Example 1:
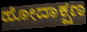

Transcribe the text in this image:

ಹೋದಾಕ್ಷಣ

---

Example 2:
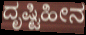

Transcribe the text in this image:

ದೃಷ್ಟಿಹೀನ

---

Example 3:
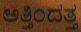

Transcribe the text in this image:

ಅತ್ತಿಂದತ್ತ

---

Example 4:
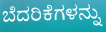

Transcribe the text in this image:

ಬೆದರಿಕೆಗಳನ್ನು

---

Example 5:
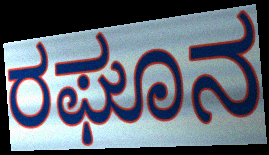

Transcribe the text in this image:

ರಘೂನ